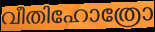
വീതിഹോത്രോ